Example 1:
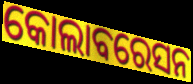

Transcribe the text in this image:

କୋଲାବରେସନ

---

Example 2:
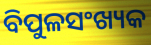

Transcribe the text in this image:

ବିପୁଳସଂଖ୍ୟକ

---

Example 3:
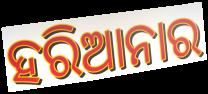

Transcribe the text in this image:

ହରିଆନାର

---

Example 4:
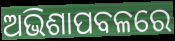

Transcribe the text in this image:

ଅଭିଶାପବଳରେ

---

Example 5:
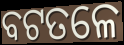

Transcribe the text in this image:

ବଟତଳେ